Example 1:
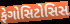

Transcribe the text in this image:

ફેગોસિટોસિસ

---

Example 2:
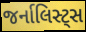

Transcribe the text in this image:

જર્નાલિસ્ટ્સ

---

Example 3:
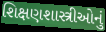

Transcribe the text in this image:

શિક્ષણશાસ્ત્રીઓનું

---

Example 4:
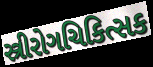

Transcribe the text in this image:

સ્ત્રીરોગચિકિત્સક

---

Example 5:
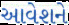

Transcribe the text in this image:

આવેશને